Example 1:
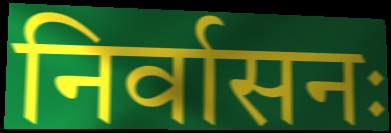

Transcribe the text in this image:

निर्वासनः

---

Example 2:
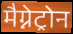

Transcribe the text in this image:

मैग्नेट्रोन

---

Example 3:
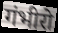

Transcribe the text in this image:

गंभीरो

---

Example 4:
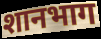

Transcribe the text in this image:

शानभाग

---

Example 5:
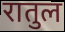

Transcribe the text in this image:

रातुल